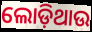
ଲୋଡ଼ିଥାଉ